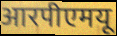
आरपीएमयू